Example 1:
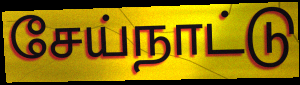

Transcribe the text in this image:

சேய்நாட்டு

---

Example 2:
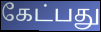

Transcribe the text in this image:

கேட்பது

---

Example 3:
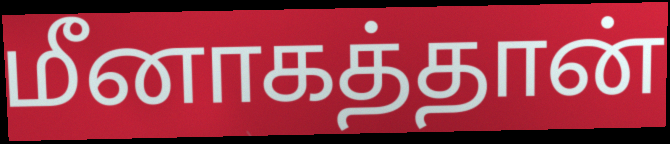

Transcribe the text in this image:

மீனாகத்தான்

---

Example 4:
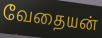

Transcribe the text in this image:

வேதையன்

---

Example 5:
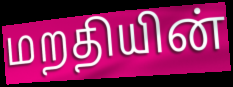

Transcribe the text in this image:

மறதியின்